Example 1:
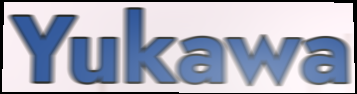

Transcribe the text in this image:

Yukawa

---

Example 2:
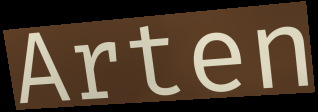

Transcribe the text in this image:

Arten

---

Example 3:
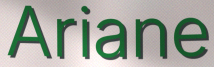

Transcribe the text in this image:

Ariane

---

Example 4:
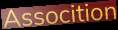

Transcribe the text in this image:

Assocition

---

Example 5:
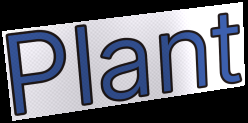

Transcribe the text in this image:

Plant